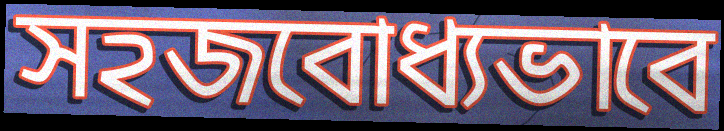
সহজবোধ্যভাবে